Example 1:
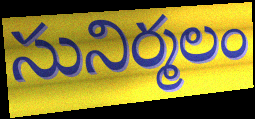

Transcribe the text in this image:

సునిర్మలం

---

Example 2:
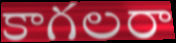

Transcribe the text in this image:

కాగలరా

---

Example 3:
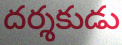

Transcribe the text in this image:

దర్శకుడు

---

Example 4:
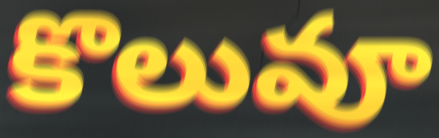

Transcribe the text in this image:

కొలువూ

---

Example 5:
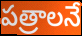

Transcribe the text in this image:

పత్రాలనే